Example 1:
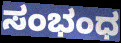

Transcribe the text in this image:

ಸಂಭಂಧ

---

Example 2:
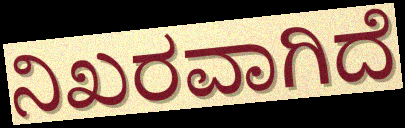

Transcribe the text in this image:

ನಿಖರವಾಗಿದೆ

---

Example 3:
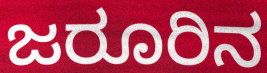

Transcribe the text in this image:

ಜರೂರಿನ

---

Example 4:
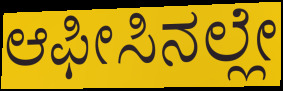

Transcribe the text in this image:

ಆಫೀಸಿನಲ್ಲೇ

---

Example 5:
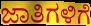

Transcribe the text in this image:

ಜಾತಿಗಳಿಗೆ